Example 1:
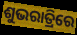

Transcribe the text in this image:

ଶୁଭରାତ୍ରିରେ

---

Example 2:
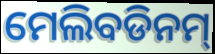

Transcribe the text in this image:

ମେଲିବଡିନମ୍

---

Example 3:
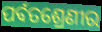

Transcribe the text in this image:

ପର୍ବତଶ୍ରେଣୀର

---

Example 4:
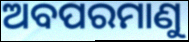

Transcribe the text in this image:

ଅବପରମାଣୁ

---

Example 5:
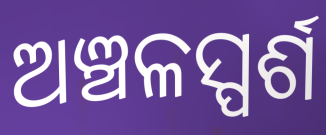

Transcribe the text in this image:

ଅଞ୍ଚଳସ୍ପର୍ଶ